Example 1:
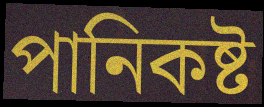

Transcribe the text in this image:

পানিকষ্ট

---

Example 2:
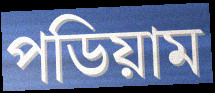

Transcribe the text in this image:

পডিয়াম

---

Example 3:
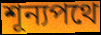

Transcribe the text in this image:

শূন্যপথে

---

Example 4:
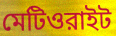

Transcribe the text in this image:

মেটিওরাইট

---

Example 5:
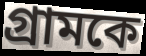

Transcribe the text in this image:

গ্রামকে